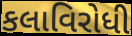
કલાવિરોધી